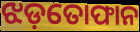
ଝଡ଼ତୋଫାନ